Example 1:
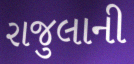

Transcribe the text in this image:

રાજુલાની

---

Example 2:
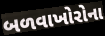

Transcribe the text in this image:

બળવાખોરોના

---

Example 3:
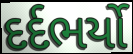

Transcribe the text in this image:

દર્દભર્યો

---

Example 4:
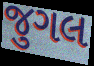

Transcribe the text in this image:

જુગલ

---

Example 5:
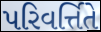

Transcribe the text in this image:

પરિવર્ત્તિતે